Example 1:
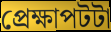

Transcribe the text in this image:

প্রেক্ষাপটটা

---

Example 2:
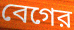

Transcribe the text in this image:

বেগের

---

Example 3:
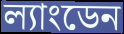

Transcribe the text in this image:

ল্যাংডেন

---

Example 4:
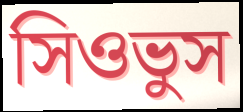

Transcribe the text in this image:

সিওভুস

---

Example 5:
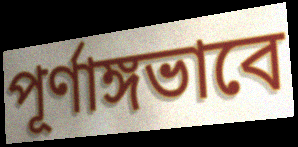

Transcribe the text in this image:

পূর্ণাঙ্গভাবে